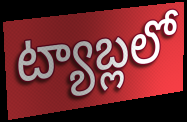
ట్యాబ్లలో